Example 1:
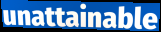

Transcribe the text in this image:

unattainable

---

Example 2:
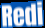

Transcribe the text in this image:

Redi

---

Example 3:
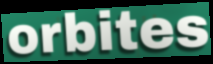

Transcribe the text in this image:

orbites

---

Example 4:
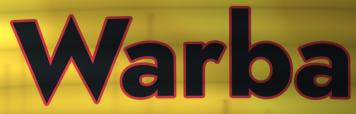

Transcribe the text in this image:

Warba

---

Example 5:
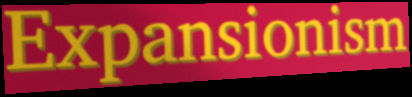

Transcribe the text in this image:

Expansionism